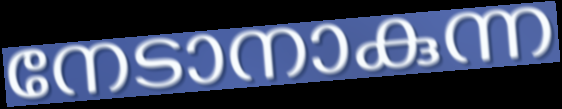
നേടാനാകുന്ന